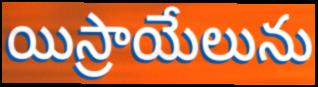
యిస్రాయేలును